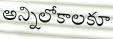
అన్నిలోకాలకూ